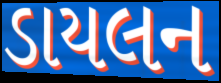
ડાયલન